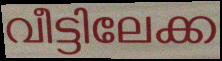
വീട്ടിലേക്ക